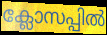
ക്ലോസപ്പിൽ